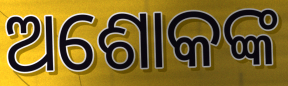
ଅଶୋକଙ୍କ